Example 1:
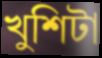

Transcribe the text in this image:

খুশিটা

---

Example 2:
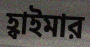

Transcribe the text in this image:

হ্বাইমার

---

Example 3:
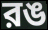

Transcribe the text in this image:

রঙ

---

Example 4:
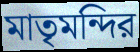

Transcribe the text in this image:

মাতৃমন্দির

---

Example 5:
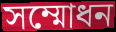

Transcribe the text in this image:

সম্মোধন